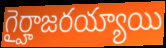
గైర్హాజరయ్యాయి